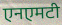
एनएमटी